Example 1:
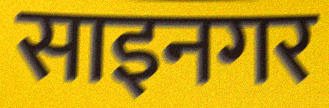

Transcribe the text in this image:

साइनगर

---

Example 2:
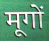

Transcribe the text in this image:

मूगों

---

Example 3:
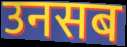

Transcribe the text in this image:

उनसब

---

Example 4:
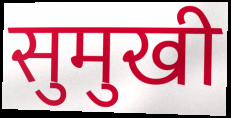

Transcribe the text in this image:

सुमुखी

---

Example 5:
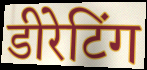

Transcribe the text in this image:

डीरेटिंग